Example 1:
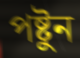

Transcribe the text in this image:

পষ্টুন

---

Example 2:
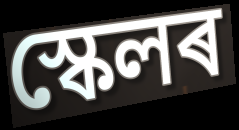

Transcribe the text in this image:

স্কেলৰ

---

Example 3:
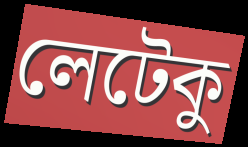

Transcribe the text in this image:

লেটেকু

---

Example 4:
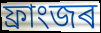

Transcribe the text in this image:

ফ্ৰাংজৰ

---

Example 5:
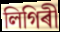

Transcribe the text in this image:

লিগিৰী